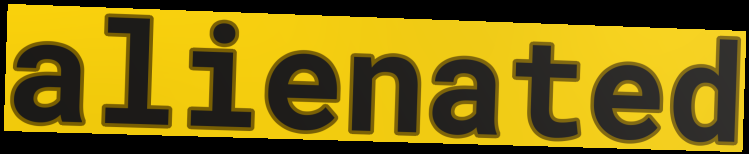
alienated